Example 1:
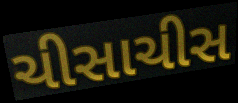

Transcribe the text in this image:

ચીસાચીસ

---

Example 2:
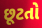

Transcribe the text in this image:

છૂટતો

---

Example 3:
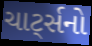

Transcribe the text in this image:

ચાર્ટ્સનો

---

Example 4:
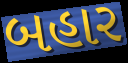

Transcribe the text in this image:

બહાર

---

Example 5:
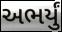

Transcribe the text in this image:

અભર્યું